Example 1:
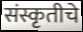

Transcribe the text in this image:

संस्कृतीचे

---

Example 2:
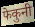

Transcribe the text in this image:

फेकुनी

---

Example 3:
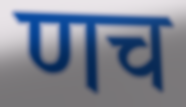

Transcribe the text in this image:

णच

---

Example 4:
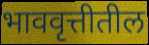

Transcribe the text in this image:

भाववृत्तीतील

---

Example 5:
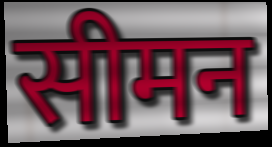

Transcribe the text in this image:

सीमन